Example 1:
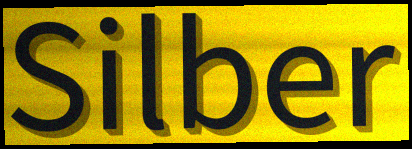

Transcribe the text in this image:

Silber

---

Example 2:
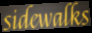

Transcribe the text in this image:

sidewalks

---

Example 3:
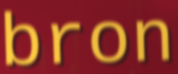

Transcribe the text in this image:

bron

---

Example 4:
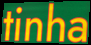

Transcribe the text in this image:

tinha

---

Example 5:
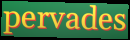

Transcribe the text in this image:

pervades